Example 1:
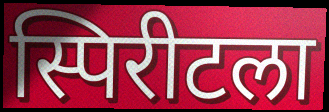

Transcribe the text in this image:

स्पिरीटला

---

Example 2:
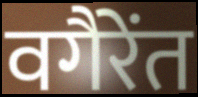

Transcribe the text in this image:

वगैरेंत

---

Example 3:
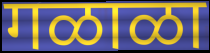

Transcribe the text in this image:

गळाळा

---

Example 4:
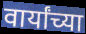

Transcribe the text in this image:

वार्यांच्या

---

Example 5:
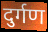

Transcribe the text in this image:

दुर्गण